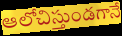
ఆలోచిస్తుండగానే